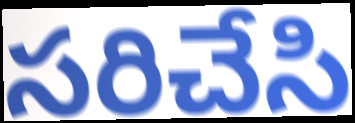
సరిచేసి